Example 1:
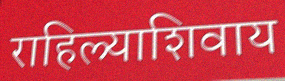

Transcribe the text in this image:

राहिल्याशिवाय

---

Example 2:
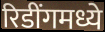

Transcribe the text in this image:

रिडींगमध्ये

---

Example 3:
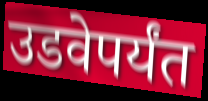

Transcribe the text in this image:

उडवेपर्यंत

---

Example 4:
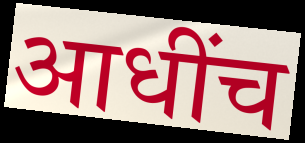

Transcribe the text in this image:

आधींच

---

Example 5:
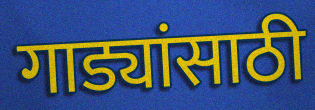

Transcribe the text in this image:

गाड्यांसाठी